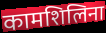
कामशिलिना